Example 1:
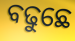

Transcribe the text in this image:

ବଢୁଛେ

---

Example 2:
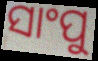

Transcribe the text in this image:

ସାଂପୁ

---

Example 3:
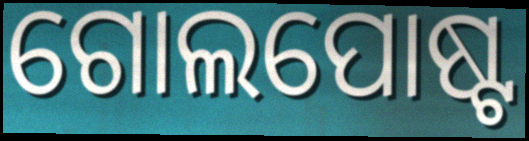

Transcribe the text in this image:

ଗୋଲପୋଷ୍ଟ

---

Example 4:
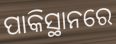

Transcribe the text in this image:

ପାକିସ୍ଥାନରେ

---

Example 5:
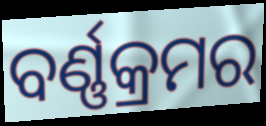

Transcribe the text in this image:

ବର୍ଣ୍ଣକ୍ରମର